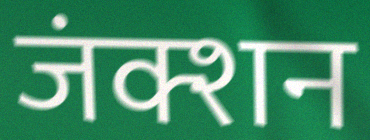
जंक्शन